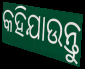
କହିଯାଉନ୍ତୁ